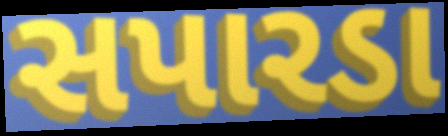
સપારડા